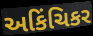
અકિંચિકર